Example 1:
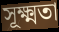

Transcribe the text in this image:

সূক্ষ্মতা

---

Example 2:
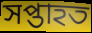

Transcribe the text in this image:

সপ্তাহত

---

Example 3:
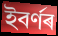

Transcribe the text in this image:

ইবৰ্ণৰ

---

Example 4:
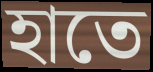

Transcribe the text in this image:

হাতে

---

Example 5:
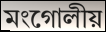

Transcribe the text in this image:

মংগোলীয়